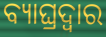
ବ୍ୟାଘ୍ରଦ୍ଵାର